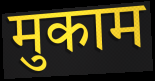
मुकाम